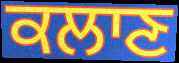
ਕਲਾਣ